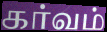
கர்வம்